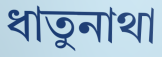
ধাতুনাথা